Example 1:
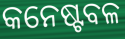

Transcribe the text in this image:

କନେଷ୍ଟବଳ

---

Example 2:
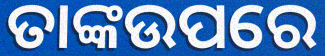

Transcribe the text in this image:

ତାଙ୍କଉପରେ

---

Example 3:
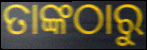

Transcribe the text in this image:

ତାଙ୍କଠାରୁ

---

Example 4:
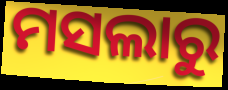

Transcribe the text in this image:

ମସଲାରୁ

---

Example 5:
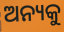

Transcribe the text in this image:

ଅନ୍ୟକୁ